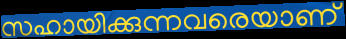
സഹായിക്കുന്നവരെയാണ്